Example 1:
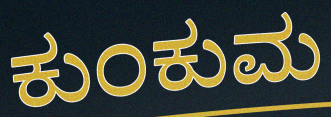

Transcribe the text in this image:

ಕುಂಕುಮ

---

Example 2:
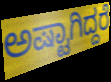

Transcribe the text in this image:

ಅಷ್ಟಾಗಿದ್ದರೆ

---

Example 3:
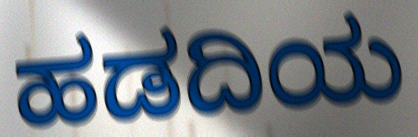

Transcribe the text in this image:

ಹಡದಿಯ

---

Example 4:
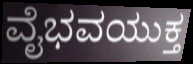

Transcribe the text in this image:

ವೈಭವಯುಕ್ತ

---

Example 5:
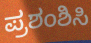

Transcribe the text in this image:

ಪ್ರಶಂಶಿಸಿ